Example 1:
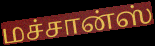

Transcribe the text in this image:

மச்சான்ஸ்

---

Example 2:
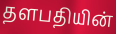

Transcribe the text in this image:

தளபதியின்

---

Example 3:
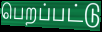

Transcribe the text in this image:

பெறப்பட்டு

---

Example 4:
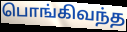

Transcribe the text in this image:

பொங்கிவந்த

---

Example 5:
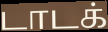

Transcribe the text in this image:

டாடக்